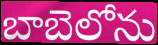
బాబెలోను